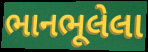
ભાનભૂલેલા